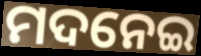
ମଦନେଇ